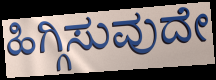
ಹಿಗ್ಗಿಸುವುದೇ